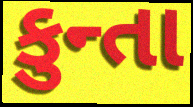
કુન્તા